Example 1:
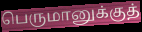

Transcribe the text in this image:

பெருமானுக்குத்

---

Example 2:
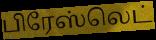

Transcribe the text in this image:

பிரேஸ்லெட்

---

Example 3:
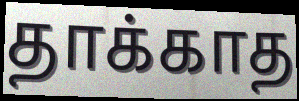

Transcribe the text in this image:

தாக்காத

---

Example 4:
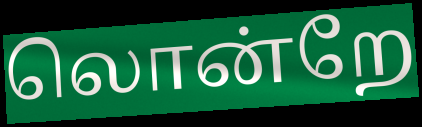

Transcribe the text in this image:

லொன்றே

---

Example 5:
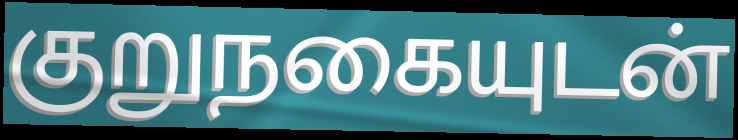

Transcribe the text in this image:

குறுநகையுடன்